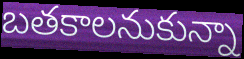
బతకాలనుకున్నా